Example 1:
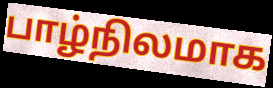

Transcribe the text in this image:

பாழ்நிலமாக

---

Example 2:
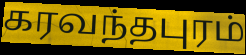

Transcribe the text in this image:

கரவந்தபுரம்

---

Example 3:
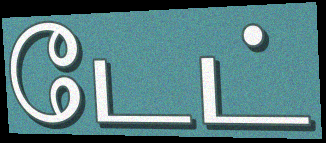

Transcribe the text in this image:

டேட்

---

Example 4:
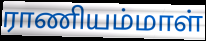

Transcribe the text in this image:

ராணியம்மாள்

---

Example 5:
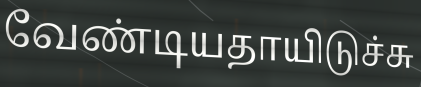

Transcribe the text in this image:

வேண்டியதாயிடுச்சு